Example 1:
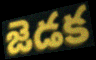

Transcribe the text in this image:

జెడక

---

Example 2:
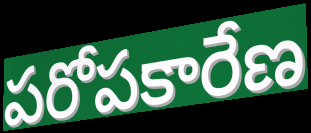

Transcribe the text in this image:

పరోపకారేణ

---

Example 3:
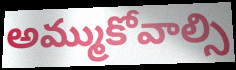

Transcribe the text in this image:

అమ్ముకోవాల్సి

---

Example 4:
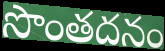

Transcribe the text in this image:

సొంతదనం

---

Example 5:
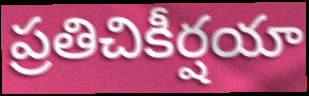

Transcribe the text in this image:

ప్రతిచికీర్షయా